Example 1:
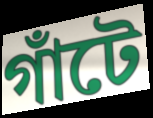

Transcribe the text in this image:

গাঁটে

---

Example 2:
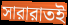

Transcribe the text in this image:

সারারাতই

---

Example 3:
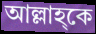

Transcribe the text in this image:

আল্লাহ্কে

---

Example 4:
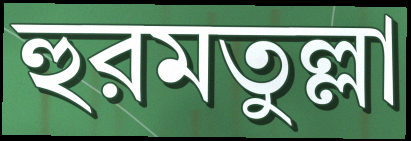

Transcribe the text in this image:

হুরমতুল্লা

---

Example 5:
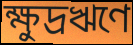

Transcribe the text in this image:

ক্ষুদ্রঋণে